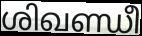
ശിഖണ്ഡീ